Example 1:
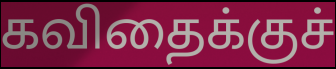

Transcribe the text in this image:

கவிதைக்குச்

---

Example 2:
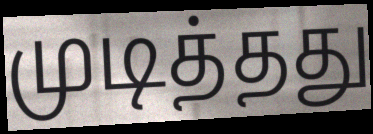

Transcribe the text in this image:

முடித்தது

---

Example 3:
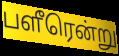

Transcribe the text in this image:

பளீரென்று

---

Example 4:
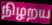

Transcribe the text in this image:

நிழறய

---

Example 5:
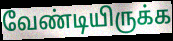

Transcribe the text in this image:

வேண்டியிருக்க